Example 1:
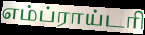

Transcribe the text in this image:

எம்ப்ராய்டரி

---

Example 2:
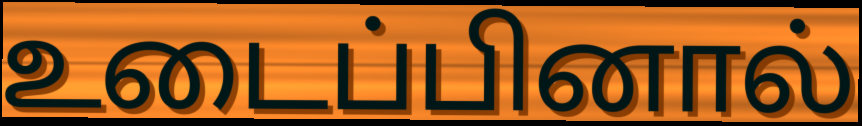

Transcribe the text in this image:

உடைப்பினால்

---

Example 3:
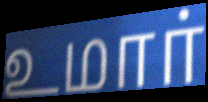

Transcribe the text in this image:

உமார்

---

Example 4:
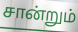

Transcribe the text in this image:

சான்றும்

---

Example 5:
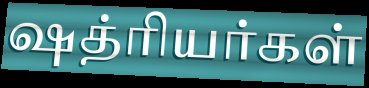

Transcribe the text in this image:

ஷத்ரியர்கள்